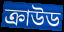
ক্রাউড